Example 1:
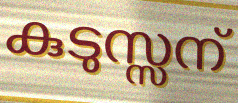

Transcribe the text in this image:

കുടുസ്സന്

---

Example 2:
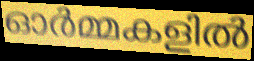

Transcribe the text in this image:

ഓർമ്മകളിൽ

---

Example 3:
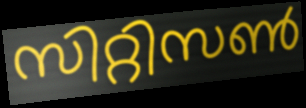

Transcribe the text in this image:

സിറ്റിസൺ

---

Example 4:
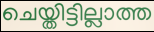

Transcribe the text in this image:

ചെയ്തിട്ടില്ലാത്ത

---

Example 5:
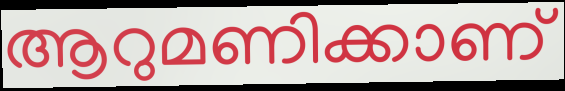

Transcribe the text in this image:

ആറുമണിക്കാണ്